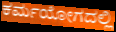
ಕರ್ಮಯೋಗದಲ್ಲಿ